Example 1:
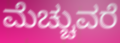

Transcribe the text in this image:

ಮೆಚ್ಚುವರೆ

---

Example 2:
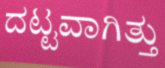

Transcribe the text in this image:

ದಟ್ಟವಾಗಿತ್ತು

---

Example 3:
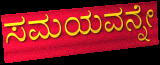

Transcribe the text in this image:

ಸಮಯವನ್ನೇ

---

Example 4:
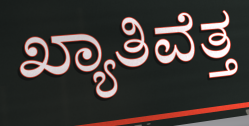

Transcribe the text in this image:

ಖ್ಯಾತಿವೆತ್ತ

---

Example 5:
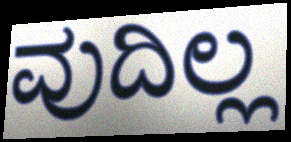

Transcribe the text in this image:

ವುದಿಲ್ಲ